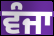
ਵੰਜਾ